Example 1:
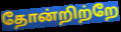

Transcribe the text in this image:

தோன்றிற்றே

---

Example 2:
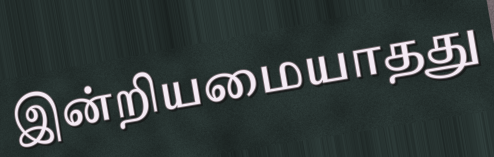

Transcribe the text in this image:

இன்றியமையாதது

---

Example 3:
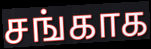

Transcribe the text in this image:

சங்காக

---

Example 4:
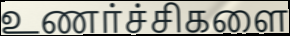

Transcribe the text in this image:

உணர்ச்சிகளை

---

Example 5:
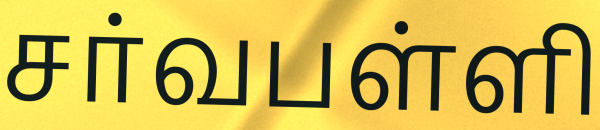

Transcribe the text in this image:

சர்வபள்ளி